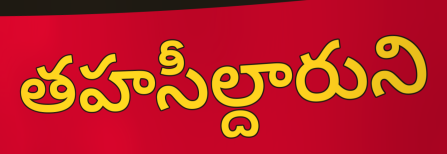
తహసీల్దారుని